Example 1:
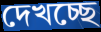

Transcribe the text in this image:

দেখচ্ছে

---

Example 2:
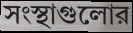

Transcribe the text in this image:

সংস্থাগুলোর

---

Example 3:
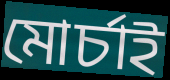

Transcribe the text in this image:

মোর্চাই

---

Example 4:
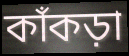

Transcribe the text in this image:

কাঁকড়া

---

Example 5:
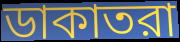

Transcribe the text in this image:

ডাকাতরা